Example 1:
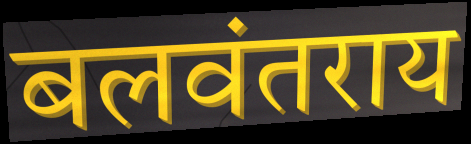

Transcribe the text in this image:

बलवंतराय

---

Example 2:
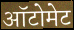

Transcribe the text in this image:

ऑटोमेट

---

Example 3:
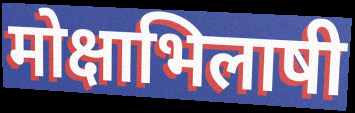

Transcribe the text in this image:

मोक्षाभिलाषी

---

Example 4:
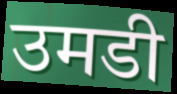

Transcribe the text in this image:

उमडी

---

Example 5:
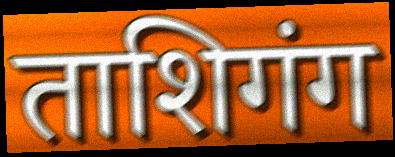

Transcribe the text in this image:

ताशिगंग